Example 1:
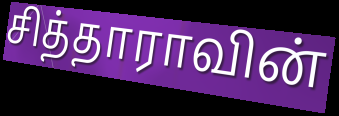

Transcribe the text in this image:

சித்தாராவின்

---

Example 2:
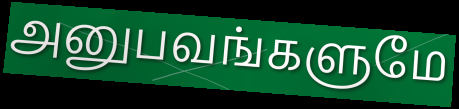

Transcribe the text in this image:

அனுபவங்களுமே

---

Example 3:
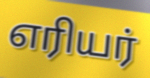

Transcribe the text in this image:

எரியர்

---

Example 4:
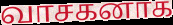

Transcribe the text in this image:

வாசகனாக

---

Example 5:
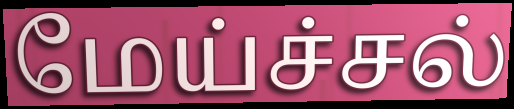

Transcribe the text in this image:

மேய்ச்சல்